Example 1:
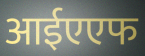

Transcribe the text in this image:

आईएएफ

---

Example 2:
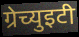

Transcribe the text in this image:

ग्रेच्युइटी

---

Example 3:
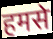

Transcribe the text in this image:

हमसे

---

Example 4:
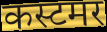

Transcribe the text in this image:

कस्टमर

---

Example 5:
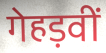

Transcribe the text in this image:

गेहड़वीं